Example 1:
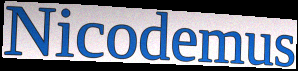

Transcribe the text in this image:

Nicodemus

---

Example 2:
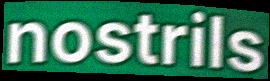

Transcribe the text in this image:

nostrils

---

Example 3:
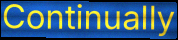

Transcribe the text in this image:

Continually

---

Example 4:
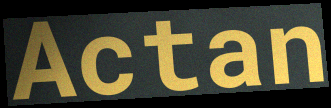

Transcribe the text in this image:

Actan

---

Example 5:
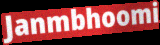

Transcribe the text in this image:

Janmbhoomi